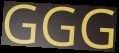
GGG